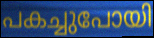
പകച്ചുപോയി